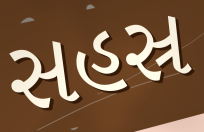
સહસ્ર